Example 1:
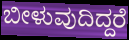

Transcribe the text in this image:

ಬೀಳುವುದಿದ್ದರೆ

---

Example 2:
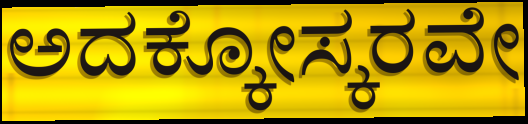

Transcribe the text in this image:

ಅದಕ್ಕೋಸ್ಕರವೇ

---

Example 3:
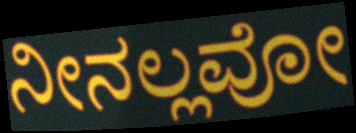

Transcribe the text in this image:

ನೀನಲ್ಲವೋ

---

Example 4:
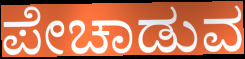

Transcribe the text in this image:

ಪೇಚಾಡುವ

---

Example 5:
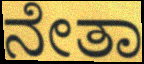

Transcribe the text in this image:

ನೇತಾ